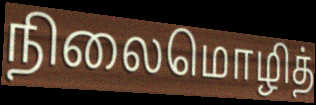
நிலைமொழித்